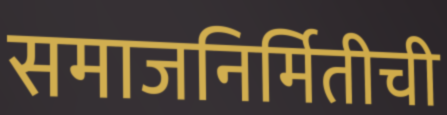
समाजनिर्मितीची